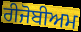
ਰੀਜੋਬੀਅਮ